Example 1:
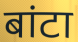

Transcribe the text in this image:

बांटा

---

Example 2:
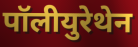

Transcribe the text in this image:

पॉलीयुरेथेन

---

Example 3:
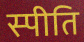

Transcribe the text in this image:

स्पीति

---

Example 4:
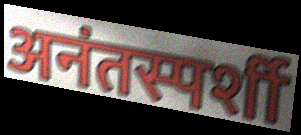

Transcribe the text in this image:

अनंतस्पर्शी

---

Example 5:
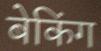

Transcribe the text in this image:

बेकिंग